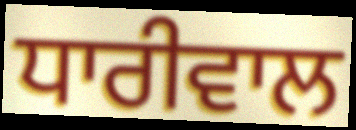
ਧਾਰੀਵਾਲ